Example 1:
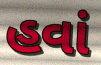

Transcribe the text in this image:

હવાં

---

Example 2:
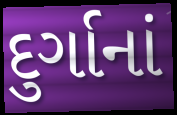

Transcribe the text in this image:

દુર્ગાનાં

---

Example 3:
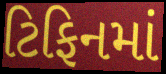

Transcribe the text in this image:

ટિફિનમાં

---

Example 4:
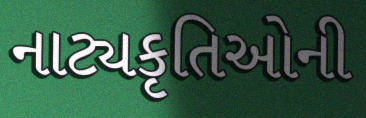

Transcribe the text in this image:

નાટ્યકૃતિઓની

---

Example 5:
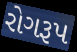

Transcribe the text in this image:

રોગરૂપ